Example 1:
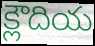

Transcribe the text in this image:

క్లౌదియ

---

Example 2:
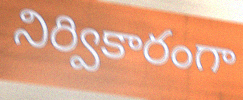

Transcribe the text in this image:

నిర్వికారంగా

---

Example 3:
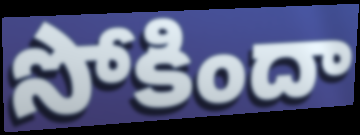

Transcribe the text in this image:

సోకిందా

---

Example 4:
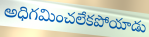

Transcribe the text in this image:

అధిగమించలేకపోయాడు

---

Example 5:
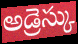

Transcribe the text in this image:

అడ్రెస్కు